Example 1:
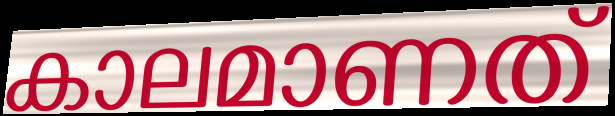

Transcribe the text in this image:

കാലമാണത്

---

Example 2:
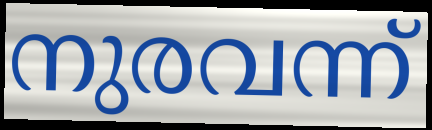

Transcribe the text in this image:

നുരവന്ന്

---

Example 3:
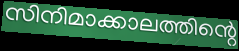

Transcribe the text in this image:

സിനിമാക്കാലത്തിന്റെ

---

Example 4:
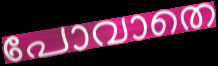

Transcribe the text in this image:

പോവാതെ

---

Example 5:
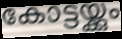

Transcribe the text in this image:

കോട്ടയ്ക്കും